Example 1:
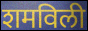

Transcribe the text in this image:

शमविली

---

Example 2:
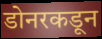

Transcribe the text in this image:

डोनरकडून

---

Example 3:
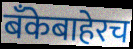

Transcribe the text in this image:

बँकेबाहेरच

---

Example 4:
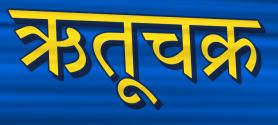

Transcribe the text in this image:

ऋतूचक्र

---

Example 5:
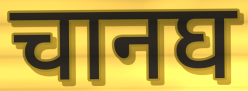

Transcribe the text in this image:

चानघ